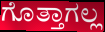
ಗೊತ್ತಾಗಲ್ಲ